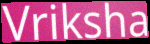
Vriksha